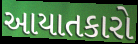
આયાતકારો